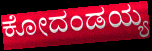
ಕೋದಂಡಯ್ಯ